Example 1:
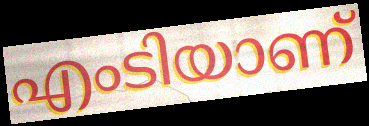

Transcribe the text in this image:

എംടിയാണ്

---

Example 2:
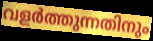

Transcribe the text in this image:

വളർത്തുന്നതിനും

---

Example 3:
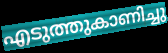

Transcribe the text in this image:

എടുത്തുകാണിച്ചു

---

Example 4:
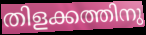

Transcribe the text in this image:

തിളക്കത്തിനു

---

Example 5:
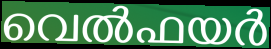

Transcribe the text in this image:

വെൽഫയർ